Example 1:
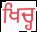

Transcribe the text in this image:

ਖਿਚ੍ਹ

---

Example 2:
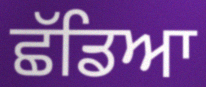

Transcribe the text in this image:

ਛੱਡਿਆ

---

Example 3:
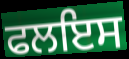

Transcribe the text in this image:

ਫਲਇਸ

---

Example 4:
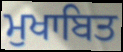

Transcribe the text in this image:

ਮੁਖਾਬਿਤ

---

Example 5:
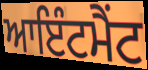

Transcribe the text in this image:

ਆਇੰਟਮੈਂਟ